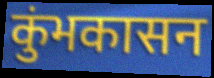
कुंभकासन